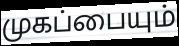
முகப்பையும்